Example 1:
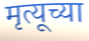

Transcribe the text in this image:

मृत्यूच्या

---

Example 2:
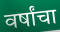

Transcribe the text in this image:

वर्षांचा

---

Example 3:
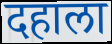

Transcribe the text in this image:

दहाला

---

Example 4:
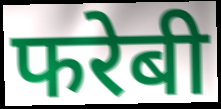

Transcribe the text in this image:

फरेबी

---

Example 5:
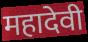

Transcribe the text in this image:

महादेवी